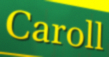
Caroll